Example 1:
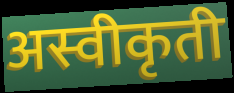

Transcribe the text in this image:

अस्वीकृती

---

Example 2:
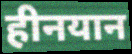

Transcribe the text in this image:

हीनयान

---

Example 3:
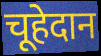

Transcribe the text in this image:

चूहेदान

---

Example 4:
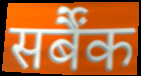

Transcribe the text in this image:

सर्बैंक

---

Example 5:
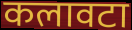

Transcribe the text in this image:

कलावटा